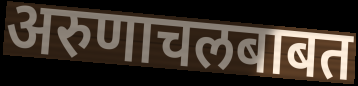
अरुणाचलबाबत